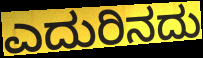
ಎದುರಿನದು